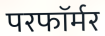
परफॉर्मर